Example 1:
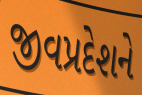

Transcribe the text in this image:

જીવપ્રદેશને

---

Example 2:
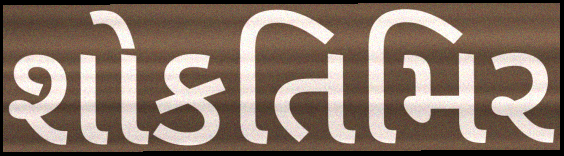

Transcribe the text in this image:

શોકતિમિર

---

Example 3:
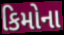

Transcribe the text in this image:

કિમોના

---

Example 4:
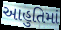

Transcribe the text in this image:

આહુતિમાં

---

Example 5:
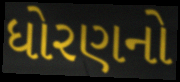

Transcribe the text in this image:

ધોરણનો